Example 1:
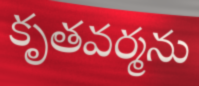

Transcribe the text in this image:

కృతవర్మను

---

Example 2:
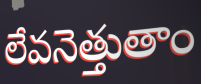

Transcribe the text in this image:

లేవనెత్తుతాం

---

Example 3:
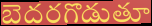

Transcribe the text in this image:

బెదరగొడుతూ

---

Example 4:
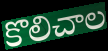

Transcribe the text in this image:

కొలిచాల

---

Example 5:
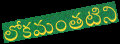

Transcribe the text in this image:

లోకమంతటిని